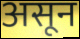
असून